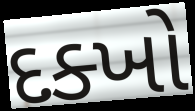
દક્ખો